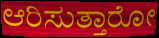
ಆರಿಸುತ್ತಾರೋ